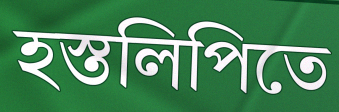
হস্তলিপিতে